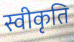
स्‍वीकृति